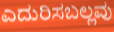
ಎದುರಿಸಬಲ್ಲವು